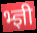
भ्ज्ञी